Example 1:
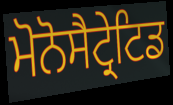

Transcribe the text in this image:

ਮੋਨੋਸੈਟ੍ਰੇਟਿਡ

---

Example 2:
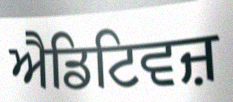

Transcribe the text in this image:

ਐਡਿਟਿਵਜ਼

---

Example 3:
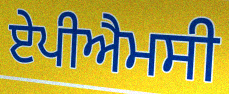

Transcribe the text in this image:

ਏਪੀਐਮਸੀ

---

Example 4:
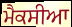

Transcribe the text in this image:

ਮੈਕਸੀਆ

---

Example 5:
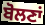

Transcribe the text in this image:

ਬੋਲਣਾਂ